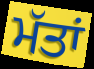
ਮੱਤਾਂ